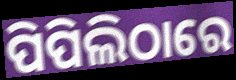
ପିପିଲିଠାରେ